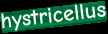
hystricellus